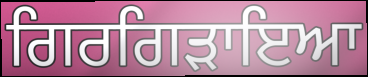
ਗਿਰਗਿੜਾਇਆ